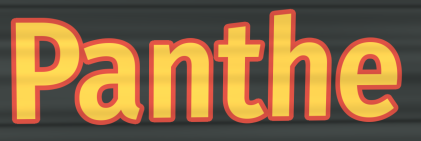
Panthe